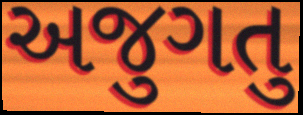
અજુગતુ